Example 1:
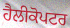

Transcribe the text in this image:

ਹੈਲੀਕੋਪਟਰ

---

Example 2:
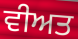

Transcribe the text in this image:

ਵੀਅਤ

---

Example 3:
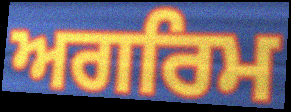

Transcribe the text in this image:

ਅਗਰਿਮ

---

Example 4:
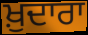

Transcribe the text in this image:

ਖ਼ੁਦਾਰਾ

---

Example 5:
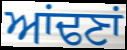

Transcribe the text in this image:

ਆਂਢਣਾਂ